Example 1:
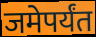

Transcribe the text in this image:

जमेपर्यंत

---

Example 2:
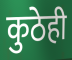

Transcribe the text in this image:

कुठेही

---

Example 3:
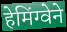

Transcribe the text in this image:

हेमिंग्वेने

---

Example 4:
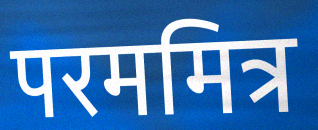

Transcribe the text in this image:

परममित्र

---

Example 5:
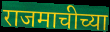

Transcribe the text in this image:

राजमाचीच्या